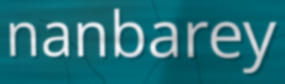
nanbarey